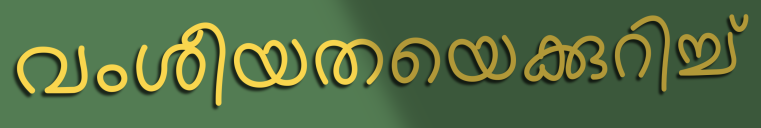
വംശീയതയെക്കുറിച്ച്